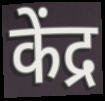
केंद्र